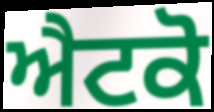
ਐਟਕੋ